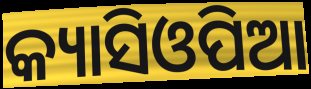
କ୍ୟାସିଓପିଆ